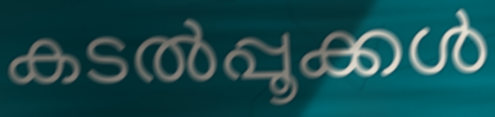
കടൽപ്പൂക്കൾ